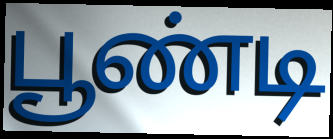
பூண்டி